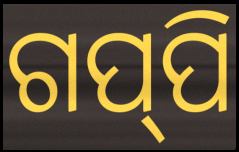
ଗପ୍‌ପି